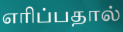
எரிப்பதால்